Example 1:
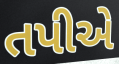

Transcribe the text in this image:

તપીએ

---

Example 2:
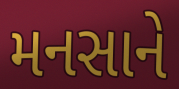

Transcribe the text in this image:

મનસાને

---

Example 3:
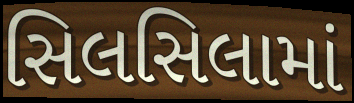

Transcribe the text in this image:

સિલસિલામાં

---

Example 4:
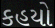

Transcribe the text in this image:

કહયો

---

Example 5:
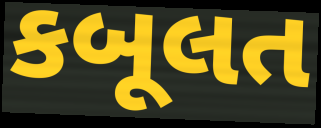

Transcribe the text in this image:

કબૂલત